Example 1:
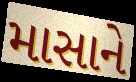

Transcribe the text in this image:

માસાને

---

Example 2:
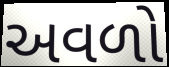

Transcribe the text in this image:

અવળો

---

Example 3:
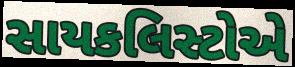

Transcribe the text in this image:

સાયકલિસ્ટોએ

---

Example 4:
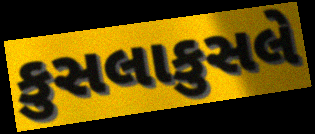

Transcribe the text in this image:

કુસલાકુસલે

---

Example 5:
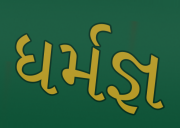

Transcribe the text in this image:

ધર્મજ્ઞ